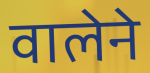
वालेने